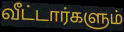
வீட்டார்களும்